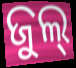
ଜୁଲ୍